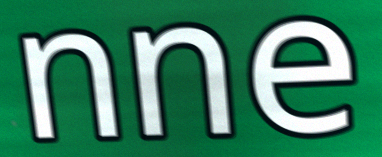
nne